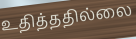
உதித்ததில்லை